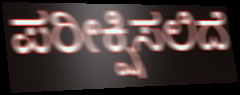
ಪರೀಕ್ಷಿಸಲಿದೆ